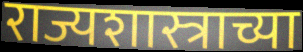
राज्यशास्त्राच्या